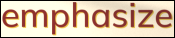
emphasize